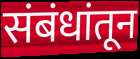
संबंधांतून